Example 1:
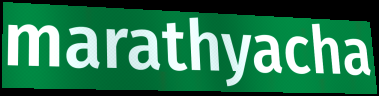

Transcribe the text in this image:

marathyacha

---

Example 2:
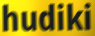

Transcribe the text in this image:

hudiki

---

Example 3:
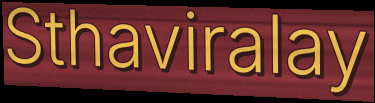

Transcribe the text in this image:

Sthaviralay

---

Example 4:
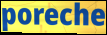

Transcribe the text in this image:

poreche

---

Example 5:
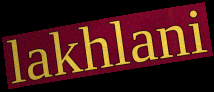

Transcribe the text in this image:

lakhlani